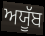
ਅਯੂੱਬ